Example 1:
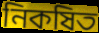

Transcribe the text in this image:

নিকষিত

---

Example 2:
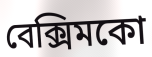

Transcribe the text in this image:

বেক্সিমকো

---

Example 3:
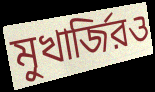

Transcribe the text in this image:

মুখার্জিরও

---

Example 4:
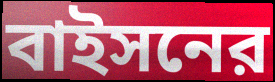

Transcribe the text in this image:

বাইসনের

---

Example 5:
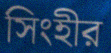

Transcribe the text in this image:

সিংহীর